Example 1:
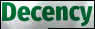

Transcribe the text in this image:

Decency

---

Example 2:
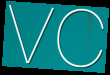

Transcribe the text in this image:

VC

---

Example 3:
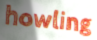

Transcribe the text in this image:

howling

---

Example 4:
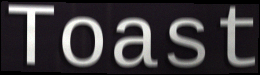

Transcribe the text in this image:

Toast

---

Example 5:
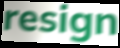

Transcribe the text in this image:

resign